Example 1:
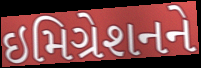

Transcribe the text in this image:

ઇમિગ્રેશનને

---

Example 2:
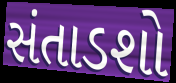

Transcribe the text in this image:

સંતાડશો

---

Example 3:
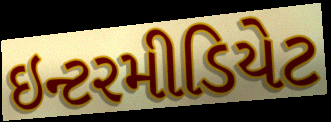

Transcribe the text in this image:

ઇન્ટરમીડિયેટ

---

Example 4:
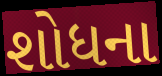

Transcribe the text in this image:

શોધના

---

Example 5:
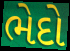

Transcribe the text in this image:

ભેદો